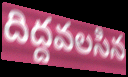
దిద్దవలసిన